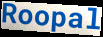
Roopal